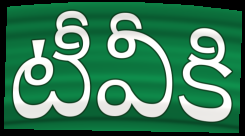
టీవీకి